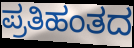
ಪ್ರತಿಹಂತದ